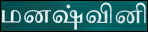
மனஷ்வினி